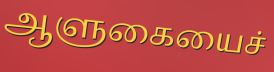
ஆளுகையைச்